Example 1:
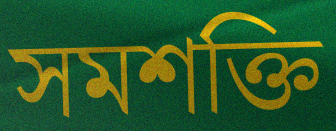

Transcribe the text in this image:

সমশক্তি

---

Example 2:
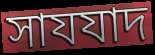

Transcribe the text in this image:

সাযযাদ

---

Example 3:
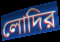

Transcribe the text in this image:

লোদির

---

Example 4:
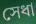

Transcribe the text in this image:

সেধা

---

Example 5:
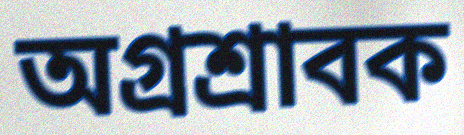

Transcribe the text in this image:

অগ্রশ্রাবক